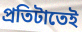
প্রতিটাতেই